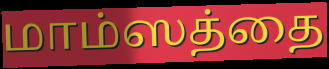
மாம்ஸத்தை